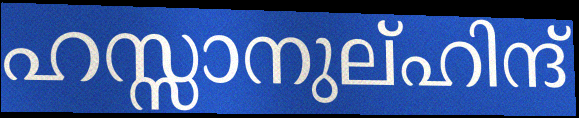
ഹസ്സാനുല്ഹിന്ദ്